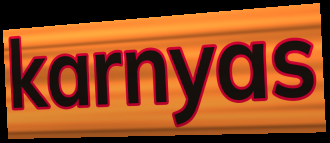
karnyas